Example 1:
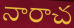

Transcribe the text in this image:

నారాచ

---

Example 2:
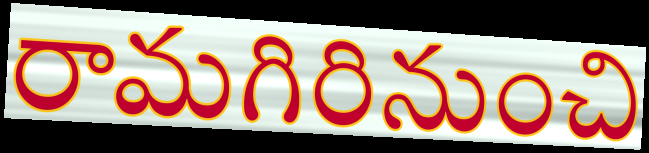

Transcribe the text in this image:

రామగిరినుంచి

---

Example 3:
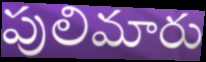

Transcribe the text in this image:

పులిమారు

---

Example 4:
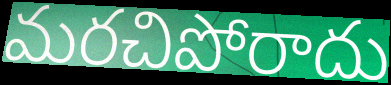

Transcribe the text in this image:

మరచిపోరాదు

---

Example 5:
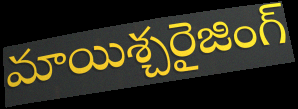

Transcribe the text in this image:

మాయిశ్చరైజింగ్